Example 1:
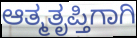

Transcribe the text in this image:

ಆತ್ಮತೃಪ್ತಿಗಾಗಿ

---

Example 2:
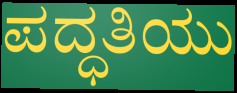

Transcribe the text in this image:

ಪದ್ಧತಿಯು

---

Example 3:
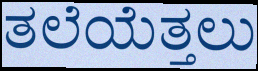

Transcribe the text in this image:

ತಲೆಯೆತ್ತಲು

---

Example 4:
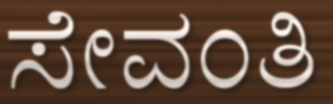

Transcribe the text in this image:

ಸೇವಂತಿ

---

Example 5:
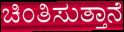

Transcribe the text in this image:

ಚಿಂತಿಸುತ್ತಾನೆ